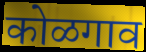
कोळगाव